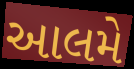
આલમે